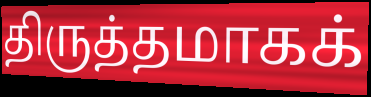
திருத்தமாகக்